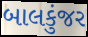
બાલકુંજર